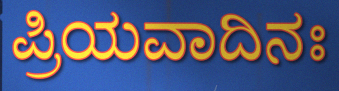
ಪ್ರಿಯವಾದಿನಃ